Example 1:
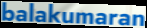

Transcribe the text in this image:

balakumaran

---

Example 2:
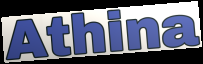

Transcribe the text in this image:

Athina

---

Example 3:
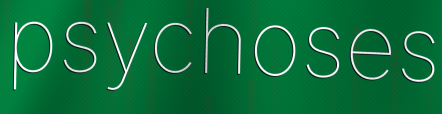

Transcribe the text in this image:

psychoses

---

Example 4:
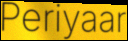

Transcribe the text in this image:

Periyaar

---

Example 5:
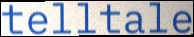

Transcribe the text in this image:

telltale